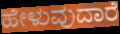
ಹೇಳುವುದಾರೆ